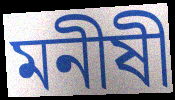
মনীষী